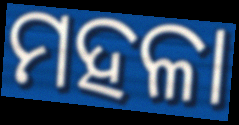
ମହଳା